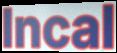
Incal